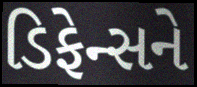
ડિફેન્સને